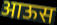
आऊस